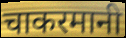
चाकरमानी